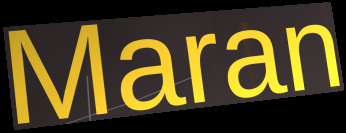
Maran